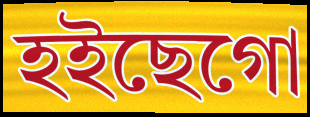
হইছেগো